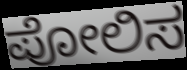
ಪೋಲಿಸ